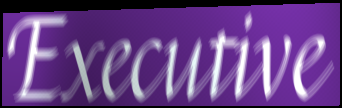
Executive